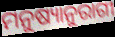
ମନୁଷ୍ୟାନୁରାଗୀ